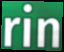
rin